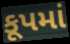
કૂપમાં